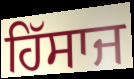
ਹਿੱਸਾਜ